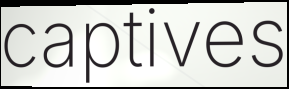
captives